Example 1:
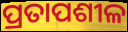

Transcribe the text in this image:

ପ୍ରତାପଶୀଳ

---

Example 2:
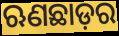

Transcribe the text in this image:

ଋଣଛାଡ଼ର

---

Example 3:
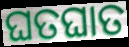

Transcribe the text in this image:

ଘତଘାତ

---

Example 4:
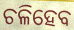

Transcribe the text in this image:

ଚଳିହେବ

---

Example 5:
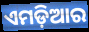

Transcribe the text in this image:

ଏମଡ଼ିଆର